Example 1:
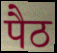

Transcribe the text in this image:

पैठ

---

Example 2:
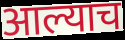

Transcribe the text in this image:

आल्याच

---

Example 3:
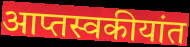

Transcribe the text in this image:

आप्तस्वकीयांत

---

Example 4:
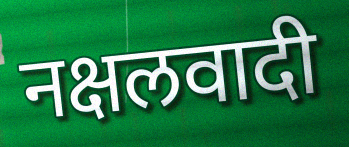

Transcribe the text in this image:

नक्षलवादी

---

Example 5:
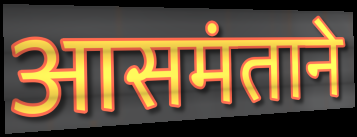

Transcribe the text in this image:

आसमंताने